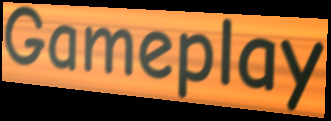
Gameplay